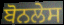
ਬੋਨਲੇਸ